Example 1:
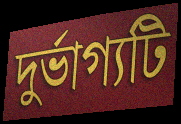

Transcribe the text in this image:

দুর্ভাগ্যটি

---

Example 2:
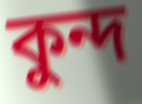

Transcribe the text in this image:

কুন্দ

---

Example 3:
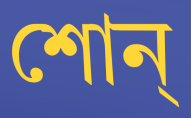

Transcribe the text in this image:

শোন্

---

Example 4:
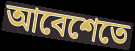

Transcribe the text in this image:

আবেশেতে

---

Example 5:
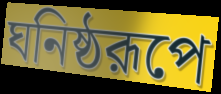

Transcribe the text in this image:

ঘনিষ্ঠরূপে